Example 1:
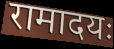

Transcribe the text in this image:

रामादयः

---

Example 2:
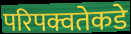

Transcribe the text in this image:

परिपक्वतेकडे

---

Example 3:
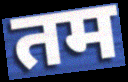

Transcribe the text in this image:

तम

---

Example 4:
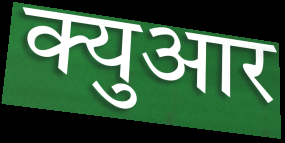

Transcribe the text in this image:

क्युआर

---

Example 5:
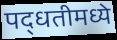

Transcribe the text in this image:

पद्धतीमध्ये